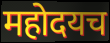
महोदयच